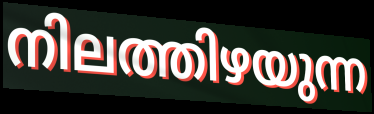
നിലത്തിഴയുന്ന